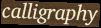
calligraphy